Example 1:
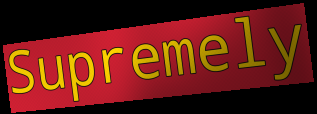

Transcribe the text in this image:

Supremely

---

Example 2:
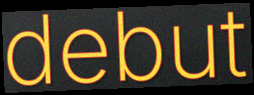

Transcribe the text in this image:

debut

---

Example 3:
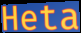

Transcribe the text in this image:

Heta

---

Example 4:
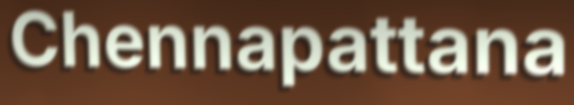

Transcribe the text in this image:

Chennapattana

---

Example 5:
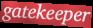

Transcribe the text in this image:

gatekeeper